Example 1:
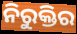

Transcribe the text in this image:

ନିରୁକ୍ତିର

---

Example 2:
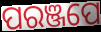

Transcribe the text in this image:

ପରଞ୍ଜପେ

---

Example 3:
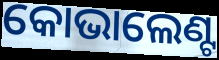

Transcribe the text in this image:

କୋଭାଲେଣ୍ଟ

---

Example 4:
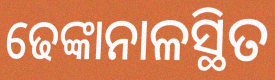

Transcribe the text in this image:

ଢେଙ୍କାନାଳସ୍ଥିତ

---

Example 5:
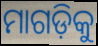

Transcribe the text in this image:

ମାଗଡ଼ିକୁ